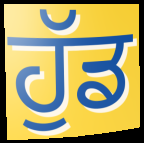
ਹੁੱਡ